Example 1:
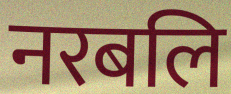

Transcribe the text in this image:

नरबलि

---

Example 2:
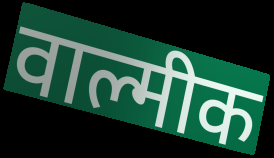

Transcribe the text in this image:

वाल्मीक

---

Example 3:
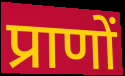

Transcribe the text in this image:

प्राणों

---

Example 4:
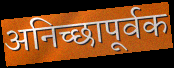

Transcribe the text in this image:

अनिच्छापूर्वक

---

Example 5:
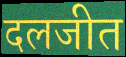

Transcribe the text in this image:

दलजीत